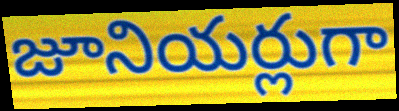
జూనియర్లుగా